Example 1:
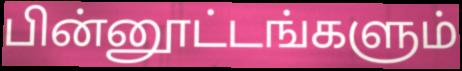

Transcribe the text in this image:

பின்னூட்டங்களும்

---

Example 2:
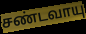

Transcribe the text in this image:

சண்டவாயு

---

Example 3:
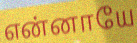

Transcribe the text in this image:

என்னாயே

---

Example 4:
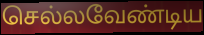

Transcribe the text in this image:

செல்லவேண்டிய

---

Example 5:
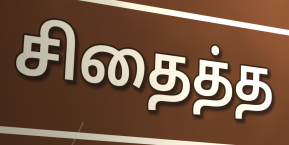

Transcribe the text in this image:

சிதைத்த